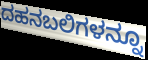
ದಹನಬಲಿಗಳನ್ನೂ